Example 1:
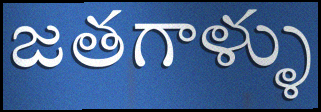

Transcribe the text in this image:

జతగాళ్ళు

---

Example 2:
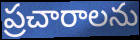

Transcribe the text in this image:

ప్రచారాలను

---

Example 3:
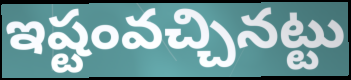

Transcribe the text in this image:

ఇష్టంవచ్చినట్టు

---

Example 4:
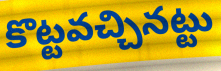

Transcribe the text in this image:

కొట్టవచ్చినట్టు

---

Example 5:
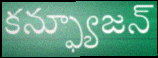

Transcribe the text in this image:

కన్ఫ్యూజన్